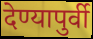
देण्यापुर्वी